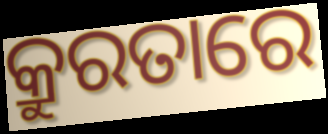
କ୍ରୁରତାରେ